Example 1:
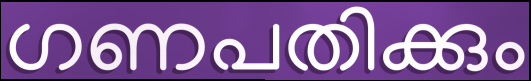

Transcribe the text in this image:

ഗണപതിക്കും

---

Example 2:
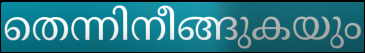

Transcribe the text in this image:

തെന്നിനീങ്ങുകയും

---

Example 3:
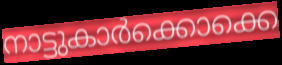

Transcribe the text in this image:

നാട്ടുകാർക്കൊക്കെ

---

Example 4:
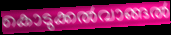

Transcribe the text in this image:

കൊടുക്കൽവാങ്ങൽ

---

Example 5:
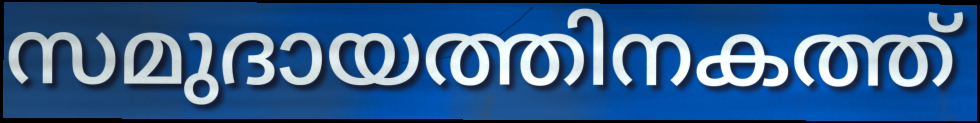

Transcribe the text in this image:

സമുദായത്തിനകത്ത്